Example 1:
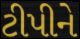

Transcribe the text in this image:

ટીપીને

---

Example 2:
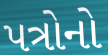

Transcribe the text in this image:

પત્રોનો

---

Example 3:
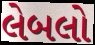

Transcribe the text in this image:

લેબલો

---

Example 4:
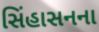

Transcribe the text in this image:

સિંહાસનના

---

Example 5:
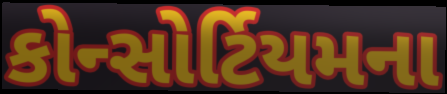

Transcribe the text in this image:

કોન્સોર્ટિયમના